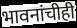
भावनांचीही